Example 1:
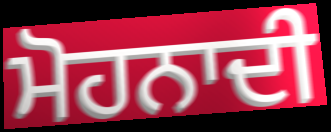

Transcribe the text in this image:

ਮੋਹਨਾਦੀ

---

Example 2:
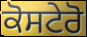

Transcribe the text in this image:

ਕੋਸਟੇਰੋ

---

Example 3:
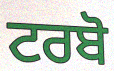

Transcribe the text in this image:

ਟਰਬੋ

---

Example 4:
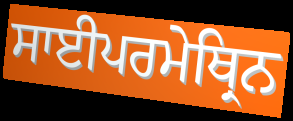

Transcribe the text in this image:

ਸਾਈਪਰਮੇਥ੍ਰਿਨ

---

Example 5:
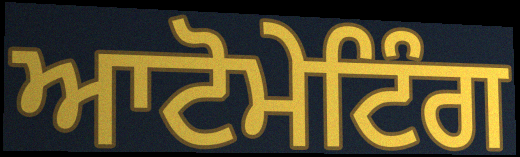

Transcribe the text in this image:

ਆਟੋਮੇਟਿੰਗ